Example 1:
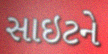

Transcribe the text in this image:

સાઇટને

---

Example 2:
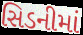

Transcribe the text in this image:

સિડનીમાં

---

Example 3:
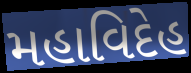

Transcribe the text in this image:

મહાવિદેહ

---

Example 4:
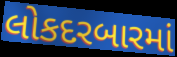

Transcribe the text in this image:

લોકદરબારમાં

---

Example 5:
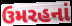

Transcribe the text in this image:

ઉમરહનાં